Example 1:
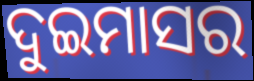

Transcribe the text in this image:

ଦୁଇମାସର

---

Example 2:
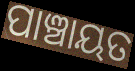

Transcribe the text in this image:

ପାଞ୍ଚାୟତ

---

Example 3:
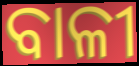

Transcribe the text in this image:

ବାଳୀ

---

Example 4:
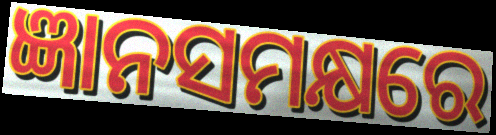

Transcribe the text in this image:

ଜ୍ଞାନସମକ୍ଷରେ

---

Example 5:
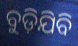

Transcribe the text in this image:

ବୁଡ଼ିଯିବି